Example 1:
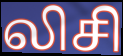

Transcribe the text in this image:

லிசி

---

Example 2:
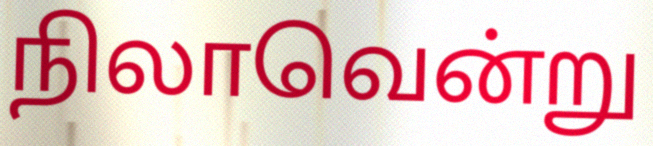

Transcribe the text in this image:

நிலாவென்று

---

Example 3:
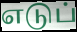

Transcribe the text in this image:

எடுப்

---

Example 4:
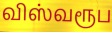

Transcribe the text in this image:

விஸ்வரூப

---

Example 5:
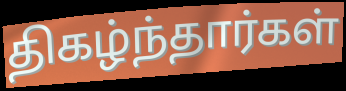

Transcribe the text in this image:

திகழ்ந்தார்கள்